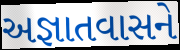
અજ્ઞાતવાસને